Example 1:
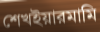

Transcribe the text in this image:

শেখইয়ারমামি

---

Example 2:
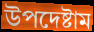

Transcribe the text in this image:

উপদেষ্টাম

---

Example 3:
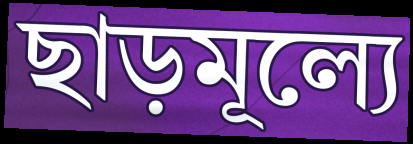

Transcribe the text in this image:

ছাড়মূল্যে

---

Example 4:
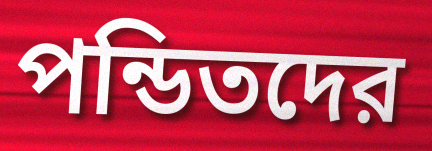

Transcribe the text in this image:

পন্ডিতদের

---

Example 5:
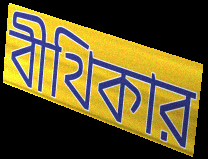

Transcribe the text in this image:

বীথিকার